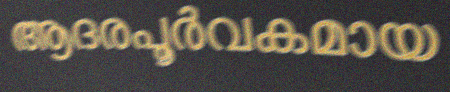
ആദരപൂർവകമായ